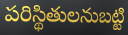
పరిస్థితులనుబట్టి